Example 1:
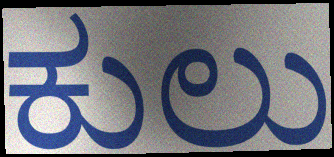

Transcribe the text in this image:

ಕುಲು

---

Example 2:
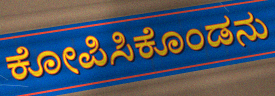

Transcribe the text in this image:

ಕೋಪಿಸಿಕೊಂಡನು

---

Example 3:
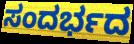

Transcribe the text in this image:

ಸಂದರ್ಭದ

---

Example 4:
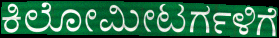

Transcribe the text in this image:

ಕಿಲೋಮೀಟರ್ಗಳಿಗೆ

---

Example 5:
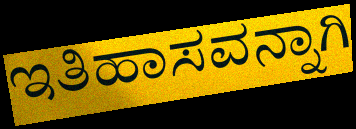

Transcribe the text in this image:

ಇತಿಹಾಸವನ್ನಾಗಿ